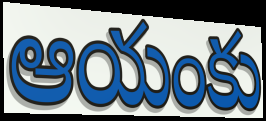
ఆయంకు